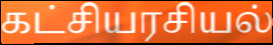
கட்சியரசியல்